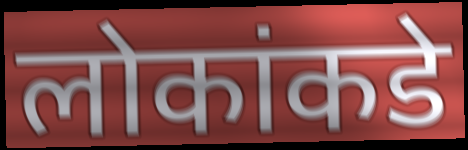
लोकांकडे